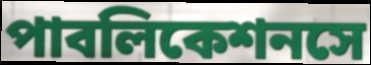
পাবলিকেশনসে